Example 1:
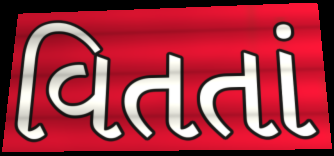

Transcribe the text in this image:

વિતતાં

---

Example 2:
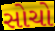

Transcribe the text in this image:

સોચો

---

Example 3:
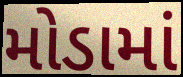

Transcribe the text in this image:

મોડામાં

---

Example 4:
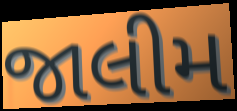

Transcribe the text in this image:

જાલીમ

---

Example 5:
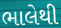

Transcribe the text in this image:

ભાલેથી